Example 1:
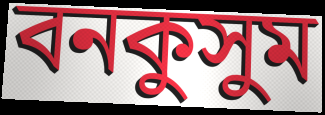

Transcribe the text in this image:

বনকুসুম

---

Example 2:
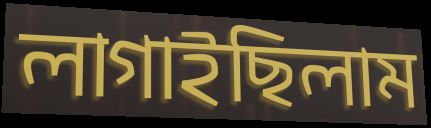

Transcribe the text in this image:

লাগাইছিলাম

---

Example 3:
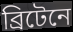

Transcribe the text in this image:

ব্রিটেনে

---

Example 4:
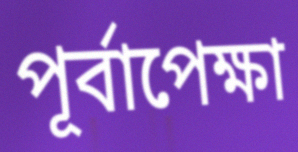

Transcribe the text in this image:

পূর্বাপেক্ষা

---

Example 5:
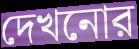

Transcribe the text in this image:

দেখনোর